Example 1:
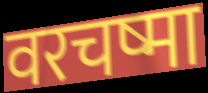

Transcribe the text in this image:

वरचष्मा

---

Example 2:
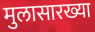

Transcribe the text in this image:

मुलासारख्या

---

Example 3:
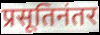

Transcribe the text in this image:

प्रसूतिनंतर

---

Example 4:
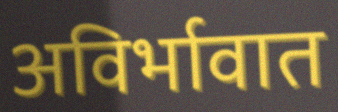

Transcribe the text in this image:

अविर्भावात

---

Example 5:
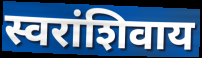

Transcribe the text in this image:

स्वरांशिवाय